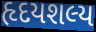
હૃદયશલ્ય